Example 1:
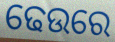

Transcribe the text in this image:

ଢେଉରେ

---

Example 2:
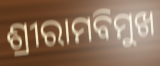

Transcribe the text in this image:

ଶ୍ରୀରାମବିମୁଖ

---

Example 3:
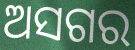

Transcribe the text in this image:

ଅସଗର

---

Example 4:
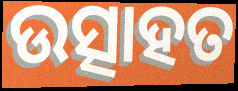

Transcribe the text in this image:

ଉତ୍ସାହତ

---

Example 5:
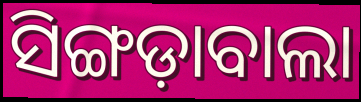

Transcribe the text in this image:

ସିଙ୍ଗଡ଼ାବାଲା